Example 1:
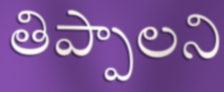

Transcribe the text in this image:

తిప్పాలని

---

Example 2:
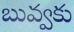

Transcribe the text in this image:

బువ్వకు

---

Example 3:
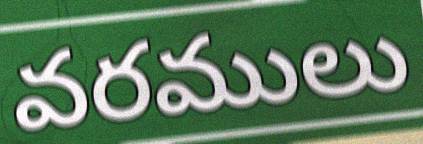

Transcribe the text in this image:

వరములు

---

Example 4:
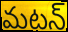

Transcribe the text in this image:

మటన్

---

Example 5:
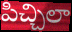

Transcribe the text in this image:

పిచ్చిలా